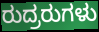
ರುದ್ರರುಗಳು